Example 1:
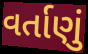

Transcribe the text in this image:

વર્તાણું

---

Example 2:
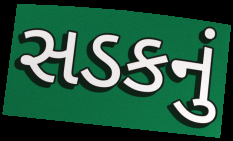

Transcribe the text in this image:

સડકનું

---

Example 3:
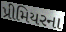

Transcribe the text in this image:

પ્રીમિયરના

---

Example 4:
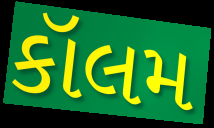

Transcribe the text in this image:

કૉલમ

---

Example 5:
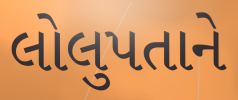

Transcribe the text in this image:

લોલુપતાને